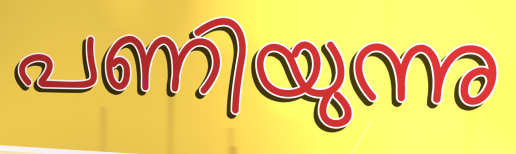
പണിയുന്നു